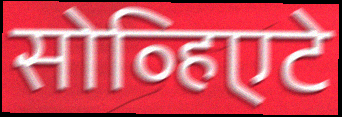
सोव्हिएटे